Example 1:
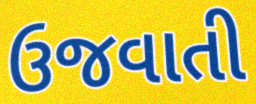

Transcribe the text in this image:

ઉજવાતી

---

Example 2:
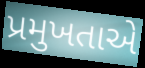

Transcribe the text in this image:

પ્રમુખતાએ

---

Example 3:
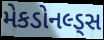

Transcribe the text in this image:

મેકડોનલ્ડ્સ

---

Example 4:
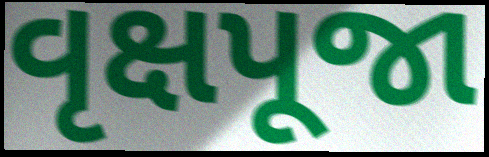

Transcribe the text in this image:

વૃક્ષપૂજા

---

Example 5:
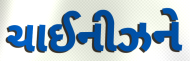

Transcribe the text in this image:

ચાઈનીઝને